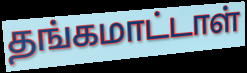
தங்கமாட்டாள்